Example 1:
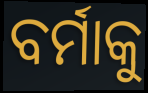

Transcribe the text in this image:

ବର୍ମାକୁ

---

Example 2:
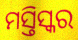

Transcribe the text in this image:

ମସ୍ତିସ୍କର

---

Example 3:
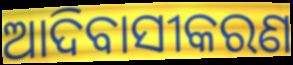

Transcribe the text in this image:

ଆଦିବାସୀକରଣ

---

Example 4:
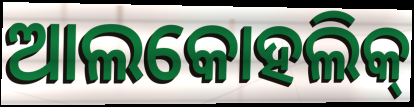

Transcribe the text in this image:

ଆଲକୋହଲିକ୍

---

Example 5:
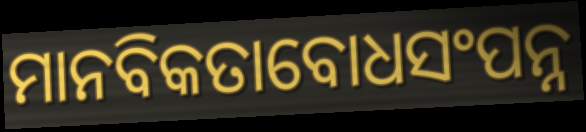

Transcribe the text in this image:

ମାନବିକତାବୋଧସଂପନ୍ନ